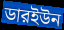
ডারইউন